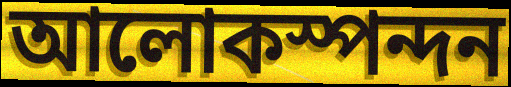
আলোকস্পন্দন